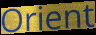
Orient